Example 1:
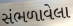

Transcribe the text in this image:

સંભળાવેલા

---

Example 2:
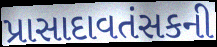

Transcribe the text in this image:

પ્રાસાદાવતંસકની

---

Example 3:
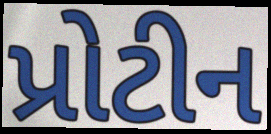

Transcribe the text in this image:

પ્રોટીન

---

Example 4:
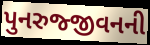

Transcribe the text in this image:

પુનરુજ્જીવનની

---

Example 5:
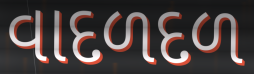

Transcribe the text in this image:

વાદળદળ